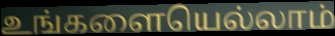
உங்களையெல்லாம்